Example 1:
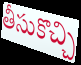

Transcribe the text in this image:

తీసుకొచ్చి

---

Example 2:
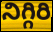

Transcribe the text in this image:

నిగ్గిరి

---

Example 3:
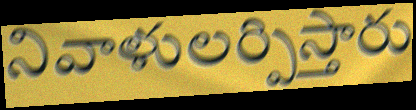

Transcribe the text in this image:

నివాళులర్పిస్తారు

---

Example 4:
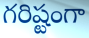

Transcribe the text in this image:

గరిష్టంగా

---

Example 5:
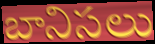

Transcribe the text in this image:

బానిసలు